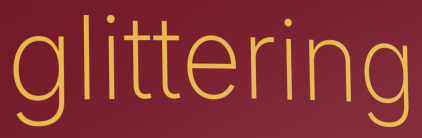
glittering